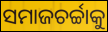
ସମାଜଚର୍ଚ୍ଚାକୁ